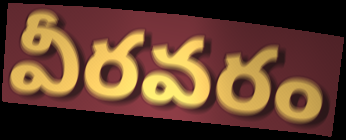
వీరవరం